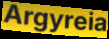
Argyreia